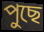
পুছে